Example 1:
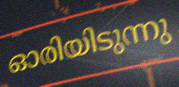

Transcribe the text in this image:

ഓരിയിടുന്നു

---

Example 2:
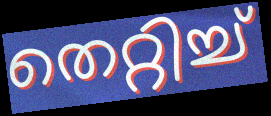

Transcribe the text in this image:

തെറ്റിച്ച്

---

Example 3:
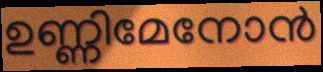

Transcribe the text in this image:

ഉണ്ണിമേനോൻ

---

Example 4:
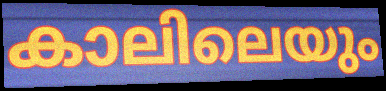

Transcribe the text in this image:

കാലിലെയും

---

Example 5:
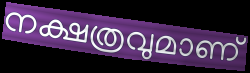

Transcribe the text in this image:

നക്ഷത്രവുമാണ്